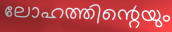
ലോഹത്തിന്റെയും